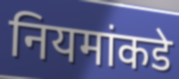
नियमांकडे